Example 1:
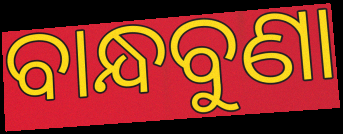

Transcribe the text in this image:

ବାନ୍ଧବୁଣା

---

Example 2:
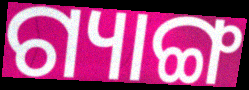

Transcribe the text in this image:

ଗ୍ୟାଙ୍ଗ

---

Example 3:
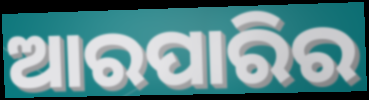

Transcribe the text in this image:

ଆରପାରିର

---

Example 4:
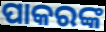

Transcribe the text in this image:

ପାକରଙ୍କ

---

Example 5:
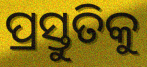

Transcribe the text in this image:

ପ୍ରସ୍ତୁତିକୁ